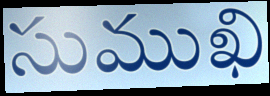
సుముఖి